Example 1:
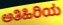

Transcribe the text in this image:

ಅತಿಹಿರಿಯ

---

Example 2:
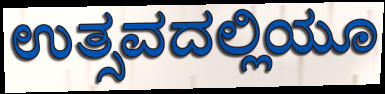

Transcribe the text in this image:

ಉತ್ಸವದಲ್ಲಿಯೂ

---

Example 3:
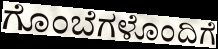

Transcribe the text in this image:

ಗೊಂಬೆಗಳೊಂದಿಗೆ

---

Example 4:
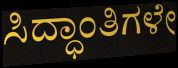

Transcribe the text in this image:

ಸಿದ್ಧಾಂತಿಗಳೇ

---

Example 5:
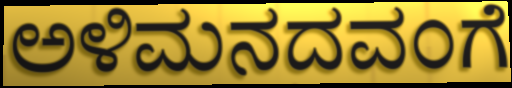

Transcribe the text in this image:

ಅಳಿಮನದವಂಗೆ